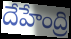
దేహేంద్రి